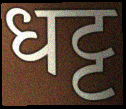
धट्ट